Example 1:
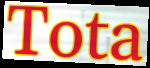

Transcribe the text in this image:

Tota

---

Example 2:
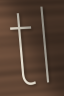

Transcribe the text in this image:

tl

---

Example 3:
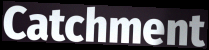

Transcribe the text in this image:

Catchment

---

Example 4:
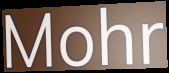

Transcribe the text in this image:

Mohr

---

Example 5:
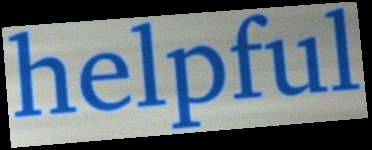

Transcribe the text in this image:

helpful